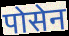
पोसेन